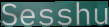
Sesshu